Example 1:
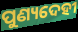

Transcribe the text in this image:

ପୁଣ୍ୟଦେହୀ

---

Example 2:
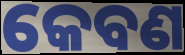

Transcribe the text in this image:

କେବଣ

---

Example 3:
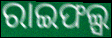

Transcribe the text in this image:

ରାଇଫଲ୍ସ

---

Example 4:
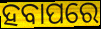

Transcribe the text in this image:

ହବାପରେ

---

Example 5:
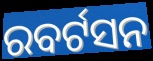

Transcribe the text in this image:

ରବର୍ଟସନ